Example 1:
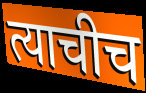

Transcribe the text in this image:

त्याचीच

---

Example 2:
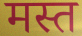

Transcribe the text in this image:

मस्त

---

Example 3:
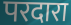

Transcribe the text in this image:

परदारा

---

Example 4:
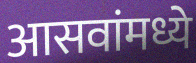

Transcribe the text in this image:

आसवांमध्ये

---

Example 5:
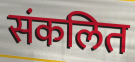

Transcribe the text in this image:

संकलित